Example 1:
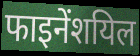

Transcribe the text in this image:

फाइनेंशयिल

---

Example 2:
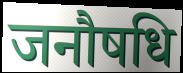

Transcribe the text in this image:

जनौषधि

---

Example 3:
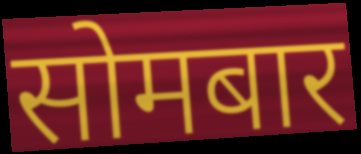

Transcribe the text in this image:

सोमबार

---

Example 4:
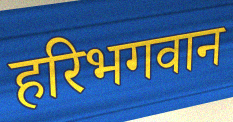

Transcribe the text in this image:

हरिभगवान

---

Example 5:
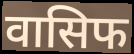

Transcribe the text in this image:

वासिफ